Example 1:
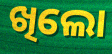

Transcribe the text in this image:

ଖିଲୋ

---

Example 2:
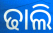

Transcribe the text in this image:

ଢାଲି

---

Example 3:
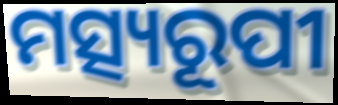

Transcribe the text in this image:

ମତ୍ସ୍ୟରୂପୀ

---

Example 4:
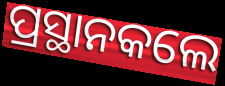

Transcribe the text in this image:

ପ୍ରସ୍ଥାନକଲେ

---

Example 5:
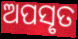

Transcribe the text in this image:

ଅପସୃତ